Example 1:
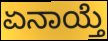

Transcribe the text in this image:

ಏನಾಯ್ತೆ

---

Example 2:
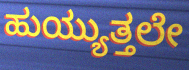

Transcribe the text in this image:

ಹುಯ್ಯುತ್ತಲೇ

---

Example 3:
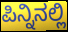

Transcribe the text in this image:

ಪಿನ್ನಿನಲ್ಲಿ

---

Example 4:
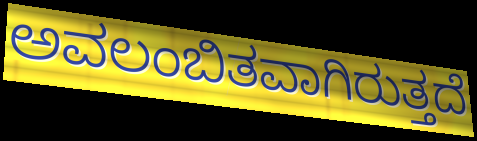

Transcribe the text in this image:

ಅವಲಂಬಿತವಾಗಿರುತ್ತದೆ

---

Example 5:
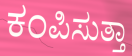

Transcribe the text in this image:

ಕಂಪಿಸುತ್ತಾ